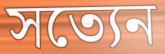
সত্যেন